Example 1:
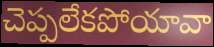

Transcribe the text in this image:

చెప్పలేకపోయావా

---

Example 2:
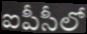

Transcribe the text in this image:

ఐపీసీలో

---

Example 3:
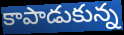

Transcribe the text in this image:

కాపాడుకున్న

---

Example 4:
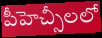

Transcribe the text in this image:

పీహెచ్సీలలో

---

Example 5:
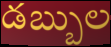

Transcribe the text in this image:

డబ్బుల